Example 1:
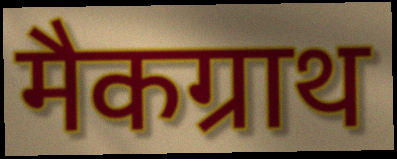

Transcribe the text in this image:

मैकग्राथ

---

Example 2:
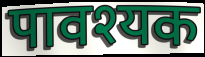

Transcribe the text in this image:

पावश्यक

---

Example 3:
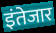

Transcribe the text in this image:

इंतेजार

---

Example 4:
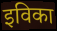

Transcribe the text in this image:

इविका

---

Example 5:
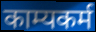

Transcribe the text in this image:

काम्यकर्म